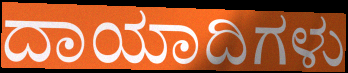
ದಾಯಾದಿಗಳು